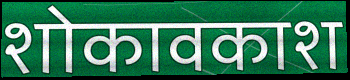
शोकावकाश